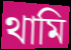
থামি